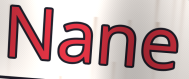
Nane